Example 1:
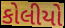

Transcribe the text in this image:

કોલીયો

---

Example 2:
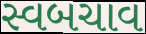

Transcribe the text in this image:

સ્વબચાવ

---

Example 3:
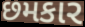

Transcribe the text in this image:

છમકાર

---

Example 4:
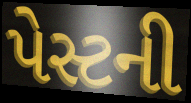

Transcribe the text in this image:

પેસ્ટની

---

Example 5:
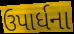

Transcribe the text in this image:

ઉપાર્ધના